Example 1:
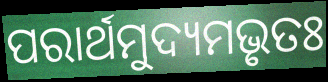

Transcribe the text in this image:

ପରାର୍ଥମୁଦ୍ୟମଭୃତଃ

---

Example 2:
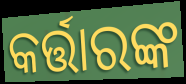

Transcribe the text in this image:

କର୍ତ୍ତାରଙ୍କ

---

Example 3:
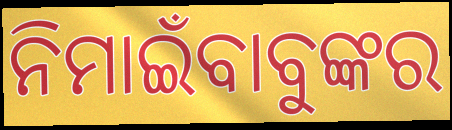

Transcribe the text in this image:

ନିମାଇଁବାବୁଙ୍କର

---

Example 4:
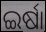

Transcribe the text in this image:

ଇର୍ଷା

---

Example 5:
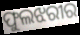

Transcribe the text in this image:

ଫୁଲଝରୀର